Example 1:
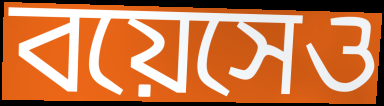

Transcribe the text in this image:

বয়েসেও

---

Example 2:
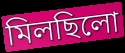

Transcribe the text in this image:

মিলছিলো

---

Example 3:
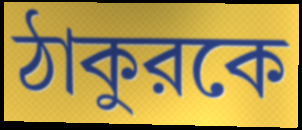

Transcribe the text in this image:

ঠাকুরকে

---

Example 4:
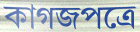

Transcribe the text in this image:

কাগজপত্রে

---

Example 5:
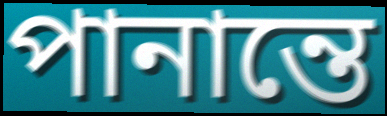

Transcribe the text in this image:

পানান্তে